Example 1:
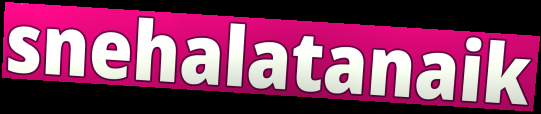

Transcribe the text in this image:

snehalatanaik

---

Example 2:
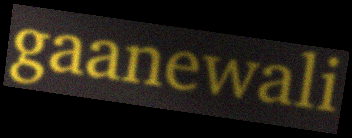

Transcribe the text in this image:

gaanewali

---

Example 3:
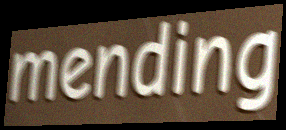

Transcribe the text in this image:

mending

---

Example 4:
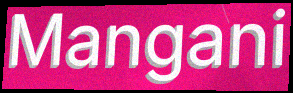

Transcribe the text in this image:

Mangani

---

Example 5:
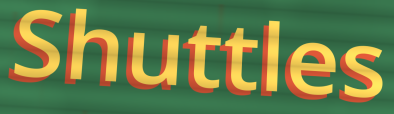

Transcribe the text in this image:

Shuttles